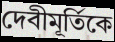
দেবীমূর্তিকে